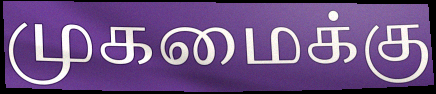
முகமைக்கு